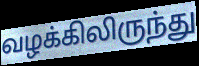
வழக்கிலிருந்து